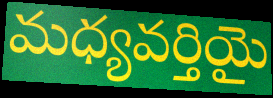
మధ్యవర్తియై